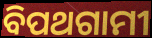
ବିପଥଗାମୀ